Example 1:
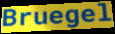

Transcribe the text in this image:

Bruegel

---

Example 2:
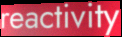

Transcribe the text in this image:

reactivity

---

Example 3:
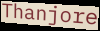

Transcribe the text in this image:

Thanjore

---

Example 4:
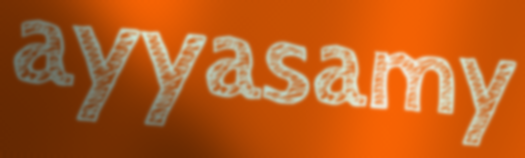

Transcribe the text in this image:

ayyasamy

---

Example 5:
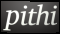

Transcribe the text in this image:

pithi